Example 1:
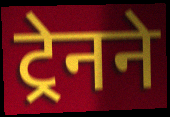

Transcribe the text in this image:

ट्रेनने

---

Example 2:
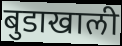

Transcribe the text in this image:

बुडाखाली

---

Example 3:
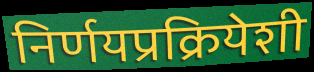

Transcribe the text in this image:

निर्णयप्रक्रियेशी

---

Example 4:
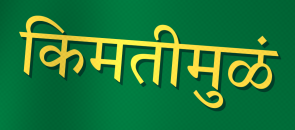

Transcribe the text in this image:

किमतीमुळं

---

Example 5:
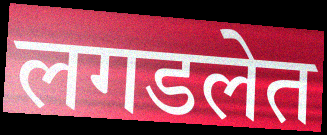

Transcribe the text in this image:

लगडलेत